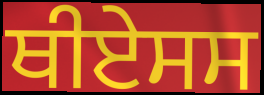
ਥੀਏਸਸ